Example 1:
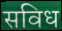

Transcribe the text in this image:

सविध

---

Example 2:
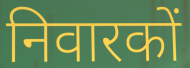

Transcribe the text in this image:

निवारकों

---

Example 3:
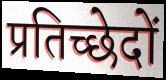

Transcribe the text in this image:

प्रतिच्छेदों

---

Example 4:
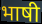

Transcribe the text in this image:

भाषी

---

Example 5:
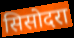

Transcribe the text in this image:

सिसोदरा